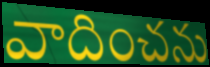
వాదించను